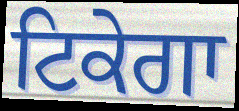
ਟਿਕੇਗਾ